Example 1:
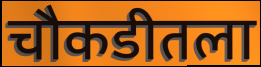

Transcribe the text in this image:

चौकडीतला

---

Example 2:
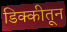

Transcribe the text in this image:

डिक्कीतून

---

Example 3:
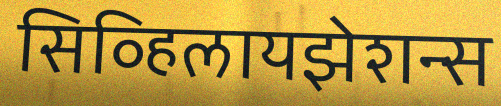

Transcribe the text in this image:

सिव्हिलायझेशन्स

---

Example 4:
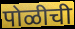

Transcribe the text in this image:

पोळीची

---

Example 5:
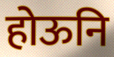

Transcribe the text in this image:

होऊनि